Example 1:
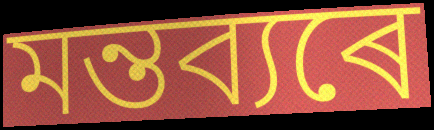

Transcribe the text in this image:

মন্তব্যৰে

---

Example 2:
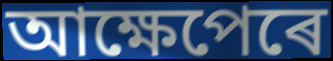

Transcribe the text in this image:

আক্ষেপেৰে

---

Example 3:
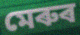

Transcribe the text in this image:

মেৰুৰ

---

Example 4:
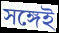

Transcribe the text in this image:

সঙ্গেই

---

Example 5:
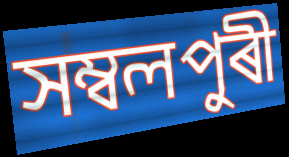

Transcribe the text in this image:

সম্বলপুৰী